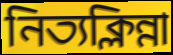
নিত্যক্লিন্না